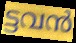
ട്ടവൻ